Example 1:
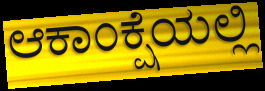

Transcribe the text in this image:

ಆಕಾಂಕ್ಷೆಯಲ್ಲಿ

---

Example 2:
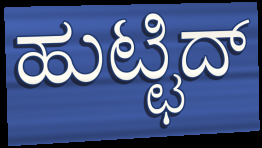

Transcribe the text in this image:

ಹುಟ್ಟಿದ್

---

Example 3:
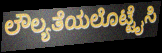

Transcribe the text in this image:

ಲೌಲ್ಯತೆಯಲೊಟ್ಟೈಸಿ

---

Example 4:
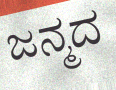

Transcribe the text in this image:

ಜನ್ಮದ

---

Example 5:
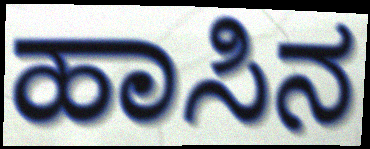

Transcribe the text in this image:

ಹಾಸಿನ